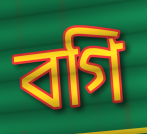
বগি